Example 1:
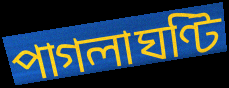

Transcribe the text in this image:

পাগলাঘণ্টি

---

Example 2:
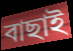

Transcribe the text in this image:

বাছাই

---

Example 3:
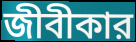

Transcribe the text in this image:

জীবীকার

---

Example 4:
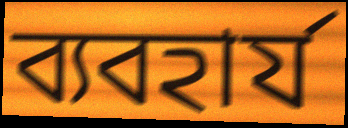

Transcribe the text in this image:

ব্যবহার্য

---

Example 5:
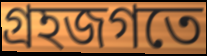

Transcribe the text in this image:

গ্রহজগতে